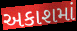
અકાશમાં